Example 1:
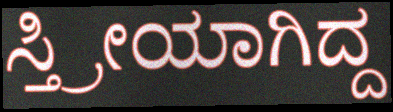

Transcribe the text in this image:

ಸ್ತ್ರೀಯಾಗಿದ್ದ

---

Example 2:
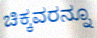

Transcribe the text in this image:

ಚಿಕ್ಕವರನ್ನೂ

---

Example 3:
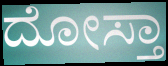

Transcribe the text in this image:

ದೋಸ್ತಾ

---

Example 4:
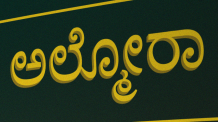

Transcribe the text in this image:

ಅಲ್ಮೋರಾ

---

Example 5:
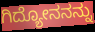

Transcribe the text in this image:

ಗಿದ್ಯೋನನನ್ನು